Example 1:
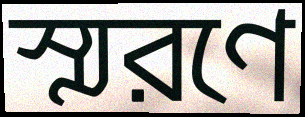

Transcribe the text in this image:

স্মরণে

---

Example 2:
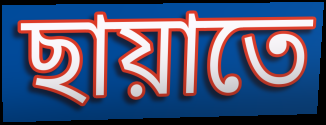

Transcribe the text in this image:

ছায়াতে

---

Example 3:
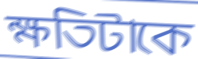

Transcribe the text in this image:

ক্ষতিটাকে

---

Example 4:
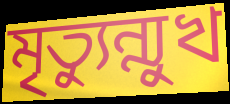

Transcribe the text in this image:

মৃত্যুন্মুখ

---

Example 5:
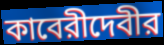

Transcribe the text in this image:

কাবেরীদেবীর